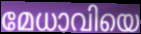
മേധാവിയെ